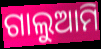
ଗାଲୁଆମି